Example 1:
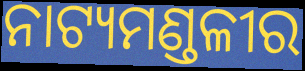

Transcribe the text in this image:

ନାଟ୍ୟମଣ୍ଡଳୀର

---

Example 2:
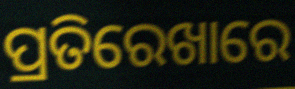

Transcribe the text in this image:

ପ୍ରତିରେଖାରେ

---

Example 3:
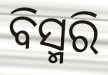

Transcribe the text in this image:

ବିସ୍ମରି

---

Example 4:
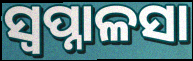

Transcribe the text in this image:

ସ୍ୱପ୍ନାଳସା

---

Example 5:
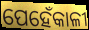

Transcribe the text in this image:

ପେହେଁକାଳୀ